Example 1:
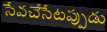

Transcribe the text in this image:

సేవచేసేటప్పుడు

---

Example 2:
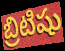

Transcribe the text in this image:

బ్రిటిషు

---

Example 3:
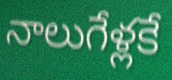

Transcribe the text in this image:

నాలుగేళ్లకే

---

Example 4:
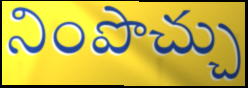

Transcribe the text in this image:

నింపొచ్చు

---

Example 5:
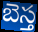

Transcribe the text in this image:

బెస్త